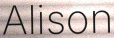
Alison